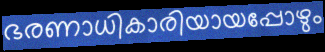
ഭരണാധികാരിയായപ്പോഴും